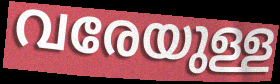
വരേയുള്ള